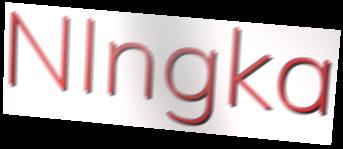
NIngka